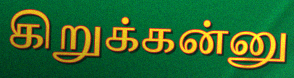
கிறுக்கன்னு